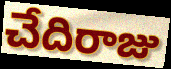
చేదిరాజు